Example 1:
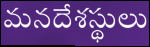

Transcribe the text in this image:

మనదేశస్థులు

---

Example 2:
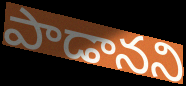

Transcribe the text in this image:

పాడానని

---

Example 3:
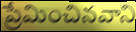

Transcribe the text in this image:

ప్రేమించినవాని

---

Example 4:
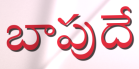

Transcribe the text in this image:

బాపుదే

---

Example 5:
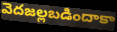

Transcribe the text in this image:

వెదజల్లబడిందాకా